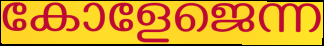
കോളേജെന്ന